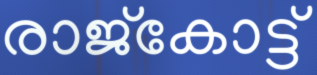
രാജ്കോട്ട്